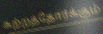
சுற்றத்தோர்க்கும்